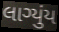
લાગ્યુંય